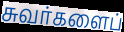
சுவர்களைப்